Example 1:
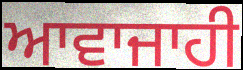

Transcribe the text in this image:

ਆਵਾਜਾਹੀ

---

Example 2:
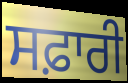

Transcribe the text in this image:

ਸਫ਼ਾਰੀ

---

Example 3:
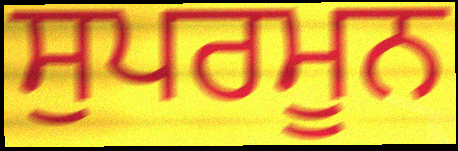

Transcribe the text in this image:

ਸੁਪਰਮੂਨ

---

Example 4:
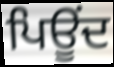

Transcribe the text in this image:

ਪਿਊਂਦ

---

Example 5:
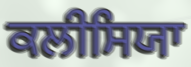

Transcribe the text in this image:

ਕਲੀਸਿਯਾ